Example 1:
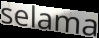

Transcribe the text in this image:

selama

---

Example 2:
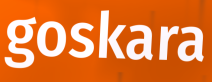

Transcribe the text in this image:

goskara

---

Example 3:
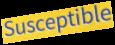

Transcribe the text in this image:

Susceptible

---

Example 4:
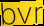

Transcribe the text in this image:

bvr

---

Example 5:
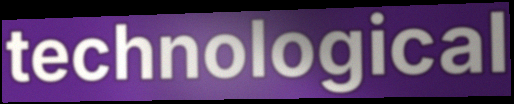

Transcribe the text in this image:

technological